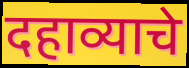
दहाव्याचे